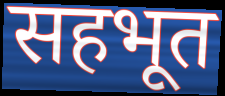
सहभूत